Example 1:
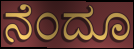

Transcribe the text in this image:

ನೆಂದೂ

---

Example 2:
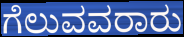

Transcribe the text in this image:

ಗೆಲುವವರಾರು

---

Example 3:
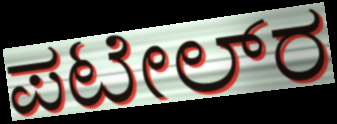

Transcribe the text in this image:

ಪಟೇಲ್‌ರ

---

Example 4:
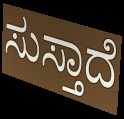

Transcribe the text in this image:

ಸುಸ್ತಾದೆ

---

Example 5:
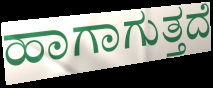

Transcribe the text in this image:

ಹಾಗಾಗುತ್ತದೆ